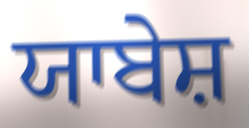
ਯਾਬੇਸ਼